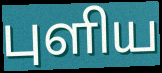
புளிய